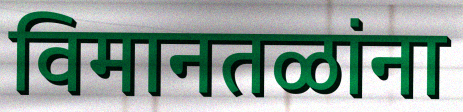
विमानतळांना